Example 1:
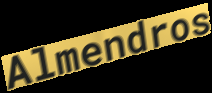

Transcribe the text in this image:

Almendros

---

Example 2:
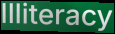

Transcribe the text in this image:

Illiteracy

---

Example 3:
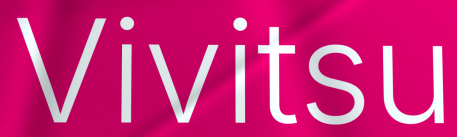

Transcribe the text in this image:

Vivitsu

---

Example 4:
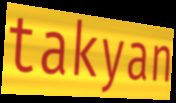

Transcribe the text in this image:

takyan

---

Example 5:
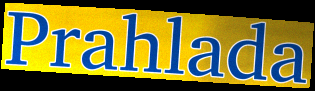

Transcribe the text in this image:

Prahlada